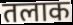
तलाक